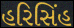
હરિસિંહ